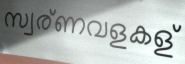
സ്വര്ണവളകള്